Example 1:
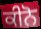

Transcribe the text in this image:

ਕੀਨੋ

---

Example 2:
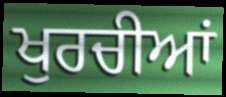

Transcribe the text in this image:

ਖੁਰਚੀਆਂ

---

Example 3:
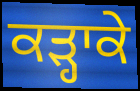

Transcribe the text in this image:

ਕੜ੍ਹਾਕੇ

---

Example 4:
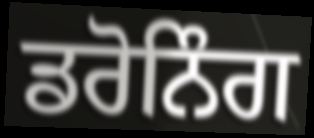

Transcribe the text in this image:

ਡਰੋਨਿੰਗ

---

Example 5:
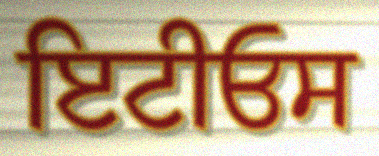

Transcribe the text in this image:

ਇਟੀਓਸ